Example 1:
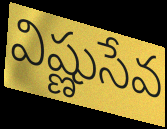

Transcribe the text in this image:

విష్ణుసేవ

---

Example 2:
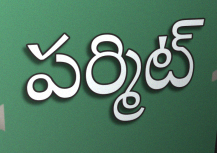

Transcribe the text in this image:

పర్మిట్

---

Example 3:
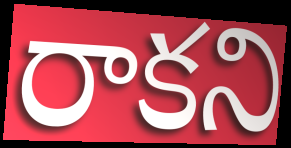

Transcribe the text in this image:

రాకని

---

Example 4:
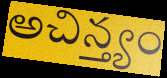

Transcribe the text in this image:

అచిన్త్యం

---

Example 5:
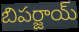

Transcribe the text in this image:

బిపర్జాయ్